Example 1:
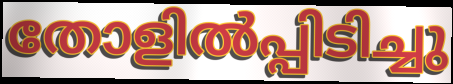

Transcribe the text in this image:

തോളിൽപ്പിടിച്ചു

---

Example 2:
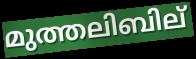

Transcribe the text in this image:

മുത്തലിബില്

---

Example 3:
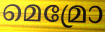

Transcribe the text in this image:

മെമ്രോ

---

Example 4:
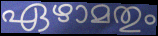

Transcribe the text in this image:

ഏഴാമതും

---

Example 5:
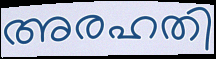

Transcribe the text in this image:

അരഹതി